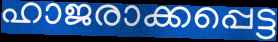
ഹാജരാക്കപ്പെട്ട